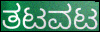
ತಟವಟ